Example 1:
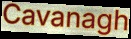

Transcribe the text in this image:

Cavanagh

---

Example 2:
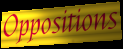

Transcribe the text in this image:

Oppositions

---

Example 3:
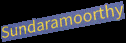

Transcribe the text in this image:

Sundaramoorthy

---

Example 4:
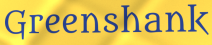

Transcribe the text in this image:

Greenshank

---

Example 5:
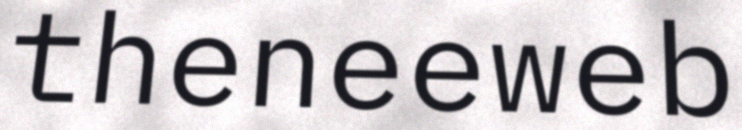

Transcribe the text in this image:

theneeweb